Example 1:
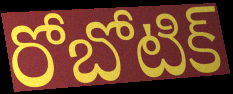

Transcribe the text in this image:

రోబోటిక్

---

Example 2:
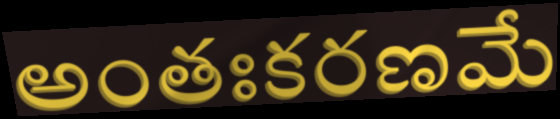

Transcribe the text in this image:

అంతఃకరణమే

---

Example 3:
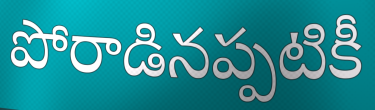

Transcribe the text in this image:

పోరాడినప్పటికీ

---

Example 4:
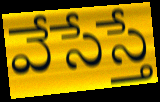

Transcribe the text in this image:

వేసేస్తే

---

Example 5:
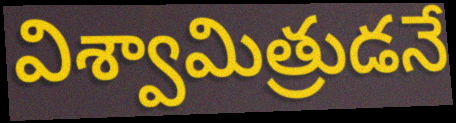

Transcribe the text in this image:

విశ్వామిత్రుడనే